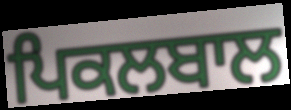
ਪਿਕਲਬਾਲ